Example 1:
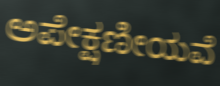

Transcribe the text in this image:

ಅಪೇಕ್ಷಣೀಯವೆ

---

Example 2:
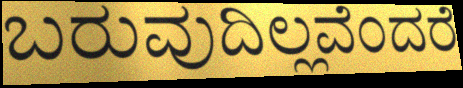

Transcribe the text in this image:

ಬರುವುದಿಲ್ಲವೆಂದರೆ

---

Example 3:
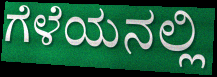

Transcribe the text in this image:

ಗೆಳೆಯನಲ್ಲಿ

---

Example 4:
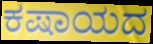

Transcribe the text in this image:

ಕಷಾಯದ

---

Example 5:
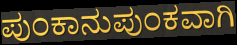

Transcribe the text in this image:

ಪುಂಕಾನುಪುಂಕವಾಗಿ